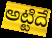
అట్టిదే